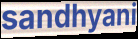
sandhyani